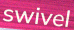
swivel